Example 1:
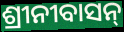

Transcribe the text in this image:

ଶ୍ରୀନୀବାସନ୍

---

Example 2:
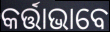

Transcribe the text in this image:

କର୍ତ୍ତାଭାବେ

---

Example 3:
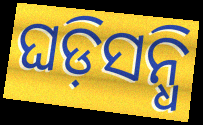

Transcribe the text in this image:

ଘଡ଼ିସନ୍ଧି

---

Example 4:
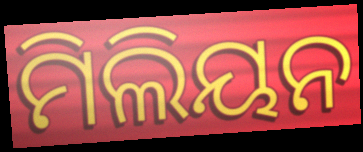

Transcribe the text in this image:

ମିଲିୟନ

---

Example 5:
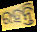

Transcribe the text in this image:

ରହନ୍ତି